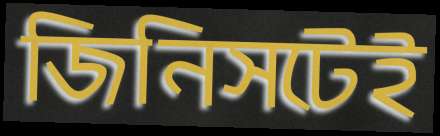
জিনিসটেই